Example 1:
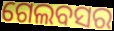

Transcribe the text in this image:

ଗେଲବସର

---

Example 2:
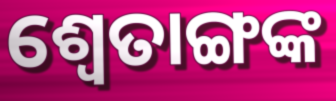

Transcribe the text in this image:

ଶ୍ୱେତାଙ୍ଗଙ୍କ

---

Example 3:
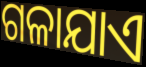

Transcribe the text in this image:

ଗଳାଯାଏ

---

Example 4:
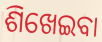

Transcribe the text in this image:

ଶିଖେଇବା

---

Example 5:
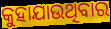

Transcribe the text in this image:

କୁହାଯାଉଥିବାର